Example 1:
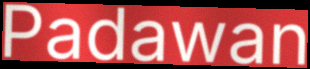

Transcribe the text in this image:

Padawan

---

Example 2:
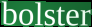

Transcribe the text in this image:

bolster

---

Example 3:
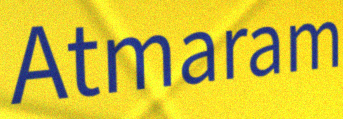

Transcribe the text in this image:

Atmaram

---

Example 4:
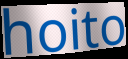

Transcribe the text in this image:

hoito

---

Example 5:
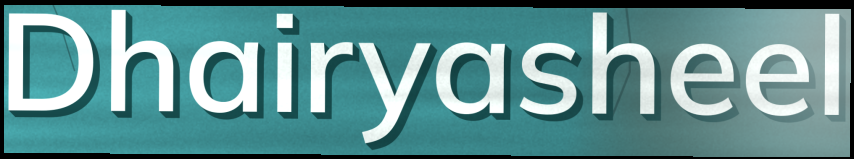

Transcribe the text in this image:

Dhairyasheel